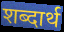
शब्दार्थ